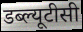
डब्ल्यूटीसी